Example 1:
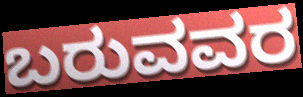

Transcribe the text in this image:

ಬರುವವರ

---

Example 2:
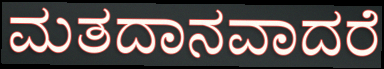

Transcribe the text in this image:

ಮತದಾನವಾದರೆ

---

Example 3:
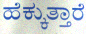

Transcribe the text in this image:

ಹೆಕ್ಕುತ್ತಾರೆ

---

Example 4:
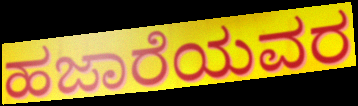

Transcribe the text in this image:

ಹಜಾರೆಯವರ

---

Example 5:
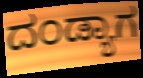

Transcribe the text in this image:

ದಂಡ್ಯಾಗ